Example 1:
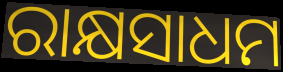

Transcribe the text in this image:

ରାକ୍ଷସାଧମ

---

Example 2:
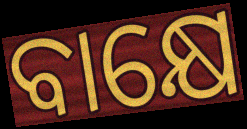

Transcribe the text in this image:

ବାକ୍ଷେ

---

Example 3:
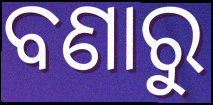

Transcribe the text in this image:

ବଣାରୁ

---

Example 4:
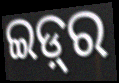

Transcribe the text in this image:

ଇଡ଼୍‍ର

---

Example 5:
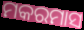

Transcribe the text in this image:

ମକରମାସ